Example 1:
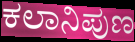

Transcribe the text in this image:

ಕಲಾನಿಪುಣ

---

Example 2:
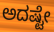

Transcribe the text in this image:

ಅದಷ್ಟೇ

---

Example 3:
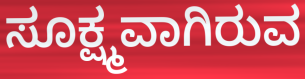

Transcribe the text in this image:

ಸೂಕ್ಷ್ಮವಾಗಿರುವ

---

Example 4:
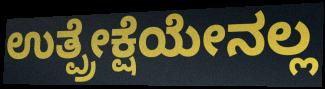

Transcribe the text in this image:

ಉತ್ಪ್ರೇಕ್ಷೆಯೇನಲ್ಲ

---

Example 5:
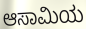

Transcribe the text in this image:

ಆಸಾಮಿಯ